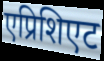
एप्रिशिएट